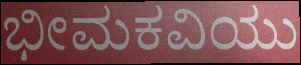
ಭೀಮಕವಿಯು